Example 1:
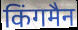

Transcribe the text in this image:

किंगमैन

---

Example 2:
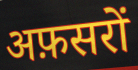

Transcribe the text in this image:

अफ़सरों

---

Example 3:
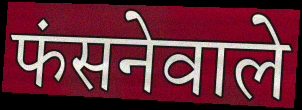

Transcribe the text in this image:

फंसनेवाले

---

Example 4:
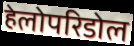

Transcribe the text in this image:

हेलोपरिडोल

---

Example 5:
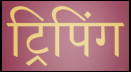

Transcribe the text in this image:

ट्रिपिंग